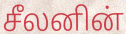
சீலனின்